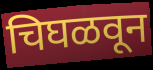
चिघळवून